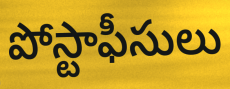
పోస్టాఫీసులు